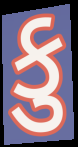
કુ